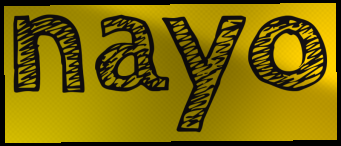
nayo